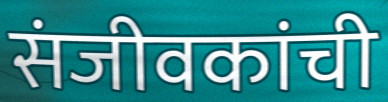
संजीवकांची